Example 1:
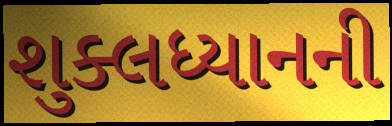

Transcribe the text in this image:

શુક્લધ્યાનની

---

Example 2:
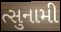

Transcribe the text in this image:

ત્સુનામી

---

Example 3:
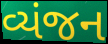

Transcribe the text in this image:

વ્યંજન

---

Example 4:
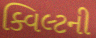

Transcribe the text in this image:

ક્વિલ્ટની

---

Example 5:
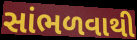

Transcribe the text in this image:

સાંભળવાથી